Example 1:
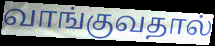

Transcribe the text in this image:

வாங்குவதால்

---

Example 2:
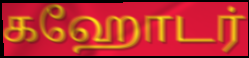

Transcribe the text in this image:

கஹோடர்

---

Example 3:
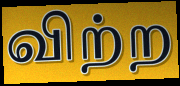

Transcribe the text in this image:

விற்ற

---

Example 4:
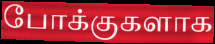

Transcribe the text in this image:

போக்குகளாக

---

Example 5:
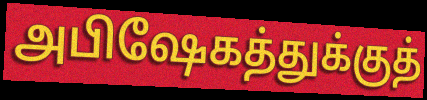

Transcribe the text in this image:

அபிஷேகத்துக்குத்